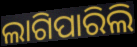
ଲାଗିପାରିଲି